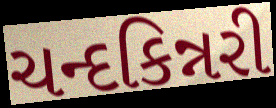
ચન્દકિન્નરી